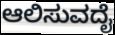
ಆಲಿಸುವದೈ